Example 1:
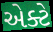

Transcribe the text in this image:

એક્ટે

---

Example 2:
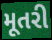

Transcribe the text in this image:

મૂતરી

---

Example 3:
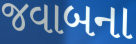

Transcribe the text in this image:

જવાબના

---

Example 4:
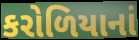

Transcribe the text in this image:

કરોળિયાનાં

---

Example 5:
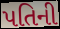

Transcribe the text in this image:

પતિની